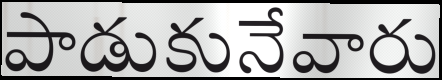
పాడుకునేవారు